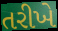
તરીખે